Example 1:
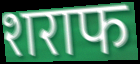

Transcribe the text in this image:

शराफ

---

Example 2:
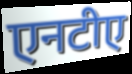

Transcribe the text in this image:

एनटीए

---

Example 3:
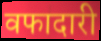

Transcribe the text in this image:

वफादारी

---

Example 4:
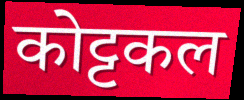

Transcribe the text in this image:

कोट्टकल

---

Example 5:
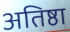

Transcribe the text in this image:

अतिष्ठा